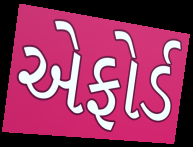
એફોર્ડ